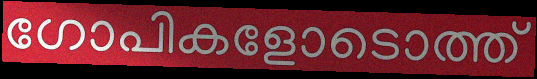
ഗോപികളോടൊത്ത്